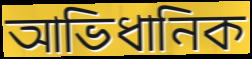
আভিধানিক